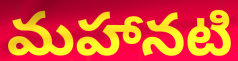
మహానటి